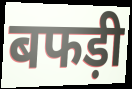
बफड़ी